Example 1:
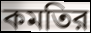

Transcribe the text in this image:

কমতির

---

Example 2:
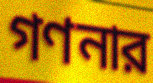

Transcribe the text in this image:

গণনার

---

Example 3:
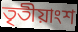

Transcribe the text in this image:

তৃতীয়াংশ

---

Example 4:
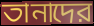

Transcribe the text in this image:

তানাদের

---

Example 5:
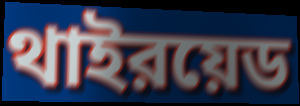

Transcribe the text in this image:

থাইরয়েড